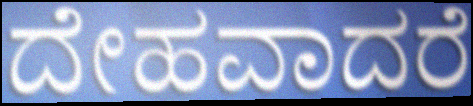
ದೇಹವಾದರೆ